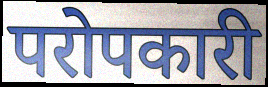
परोपकारी